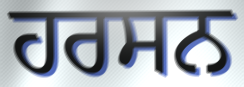
ਹਰਸਨ